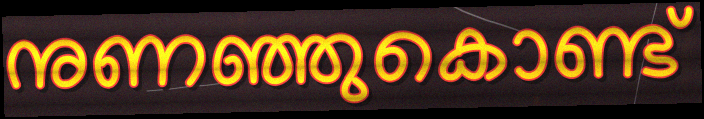
നുണഞ്ഞുകൊണ്ട്